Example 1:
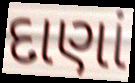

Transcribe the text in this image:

દાણાં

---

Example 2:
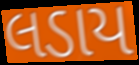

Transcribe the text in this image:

લડાય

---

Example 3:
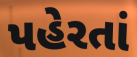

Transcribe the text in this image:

પહેરતાં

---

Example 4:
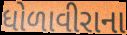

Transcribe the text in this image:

ધોળાવીરાના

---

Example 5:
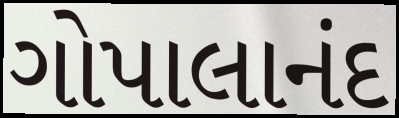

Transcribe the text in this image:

ગોપાલાનંદ